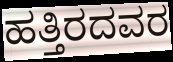
ಹತ್ತಿರದವರ